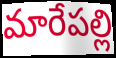
మారేపల్లి